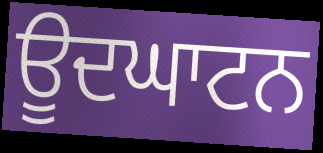
ਊਦਘਾਟਨ